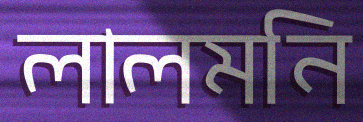
লালমনি